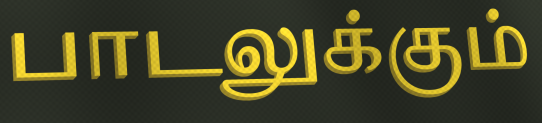
பாடலுக்கும்